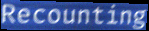
Recounting